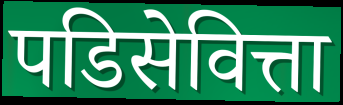
पडिसेवित्ता